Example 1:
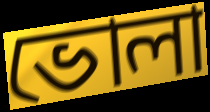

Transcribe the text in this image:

ভোলা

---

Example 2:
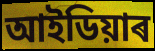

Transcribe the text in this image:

আইডিয়াৰ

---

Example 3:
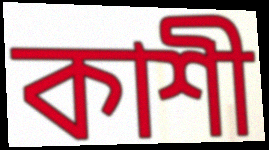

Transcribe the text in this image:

কাশী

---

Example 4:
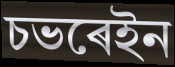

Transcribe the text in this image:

চভৰেইন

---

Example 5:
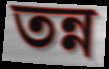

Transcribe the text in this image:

তন্ন